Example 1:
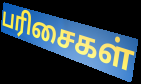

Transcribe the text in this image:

பரிசைகள்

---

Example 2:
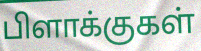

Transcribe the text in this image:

பிளாக்குகள்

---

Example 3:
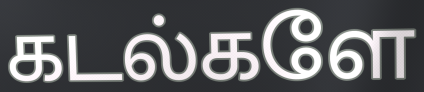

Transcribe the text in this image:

கடல்களே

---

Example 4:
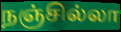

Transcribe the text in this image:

நஞ்சில்லா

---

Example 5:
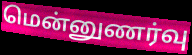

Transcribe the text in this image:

மென்னுணர்வு